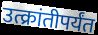
उत्क्रांतीपर्यंत